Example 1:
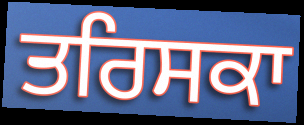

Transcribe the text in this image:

ਤਰਿਸਕਾ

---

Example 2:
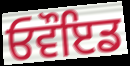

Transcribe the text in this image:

ਓਵੌਇਡ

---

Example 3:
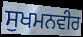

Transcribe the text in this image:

ਸੁਖਮਨਵੀਰ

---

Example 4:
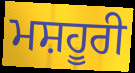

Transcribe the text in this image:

ਮਸ਼ਹੂਰੀ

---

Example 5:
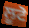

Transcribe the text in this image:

ਲੂਟੋ